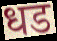
धड